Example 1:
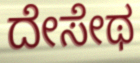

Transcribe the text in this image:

ದೇಸೇಥ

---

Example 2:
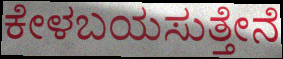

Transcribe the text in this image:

ಕೇಳಬಯಸುತ್ತೇನೆ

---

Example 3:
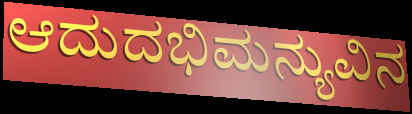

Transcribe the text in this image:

ಆದುದಭಿಮನ್ಯುವಿನ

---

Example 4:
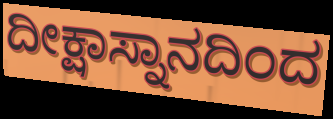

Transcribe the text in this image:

ದೀಕ್ಷಾಸ್ನಾನದಿಂದ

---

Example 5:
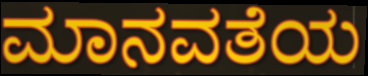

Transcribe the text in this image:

ಮಾನವತೆಯ